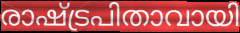
രാഷ്ട്രപിതാവായി